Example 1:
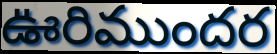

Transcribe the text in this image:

ఊరిముందర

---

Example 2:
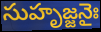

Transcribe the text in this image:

సుహృజ్జనైః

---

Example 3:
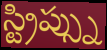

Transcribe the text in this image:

స్ట్రిప్స్ను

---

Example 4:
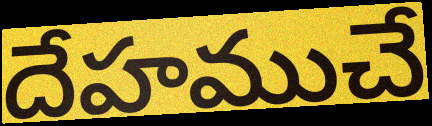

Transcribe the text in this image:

దేహముచే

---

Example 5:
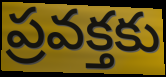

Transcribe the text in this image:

ప్రవక్తకు